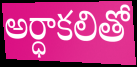
అర్ధాకలితో